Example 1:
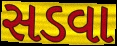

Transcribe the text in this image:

સડવા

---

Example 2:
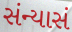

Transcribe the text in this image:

સંન્યાસં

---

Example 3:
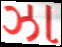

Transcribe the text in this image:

ઝા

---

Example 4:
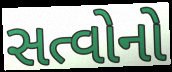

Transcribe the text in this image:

સત્વોનો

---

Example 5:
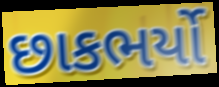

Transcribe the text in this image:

છાકભર્યો